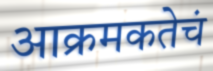
आक्रमकतेचं